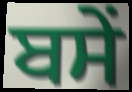
ਬਸੇਂ